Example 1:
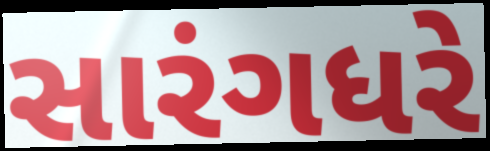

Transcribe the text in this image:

સારંગધરે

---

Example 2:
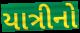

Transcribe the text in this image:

યાત્રીનો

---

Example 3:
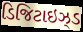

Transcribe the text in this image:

ડિજિટાઇઝ્ડ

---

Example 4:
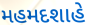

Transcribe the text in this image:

મહમદશાહે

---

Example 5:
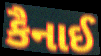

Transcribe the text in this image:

કૈનાઈ